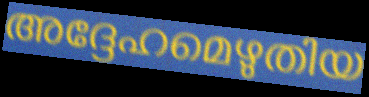
അദ്ദേഹമെഴുതിയ